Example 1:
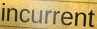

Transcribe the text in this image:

incurrent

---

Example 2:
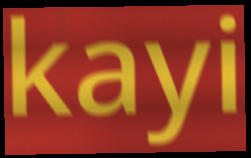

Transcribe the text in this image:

kayi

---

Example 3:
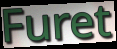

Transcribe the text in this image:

Furet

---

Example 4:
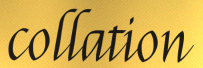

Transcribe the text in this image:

collation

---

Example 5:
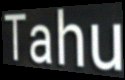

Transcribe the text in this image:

Tahu